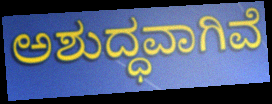
ಅಶುದ್ಧವಾಗಿವೆ